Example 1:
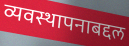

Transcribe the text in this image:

व्यवस्थापनाबद्दल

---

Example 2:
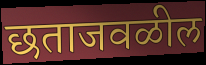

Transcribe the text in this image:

छताजवळील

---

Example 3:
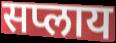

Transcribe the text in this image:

सप्लाय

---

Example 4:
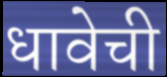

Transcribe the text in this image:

धावेची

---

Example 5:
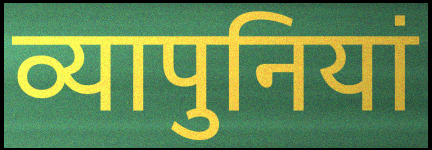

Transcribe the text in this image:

व्यापुनियां